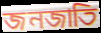
জনজাতি